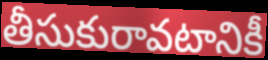
తీసుకురావటానికీ